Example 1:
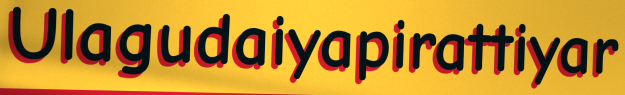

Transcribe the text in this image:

Ulagudaiyapirattiyar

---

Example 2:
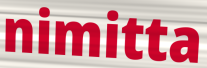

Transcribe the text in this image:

nimitta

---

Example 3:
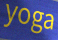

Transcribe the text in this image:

yoga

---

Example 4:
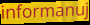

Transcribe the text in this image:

informanuj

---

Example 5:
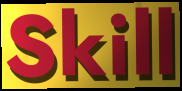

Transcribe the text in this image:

Skill